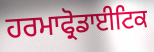
ਹਰਮਾਫ੍ਰੋਡਾਈਟਿਕ